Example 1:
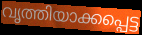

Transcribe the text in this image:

വൃത്തിയാക്കപ്പെട്ട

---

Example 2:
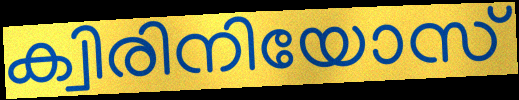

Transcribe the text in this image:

ക്വിരിനിയോസ്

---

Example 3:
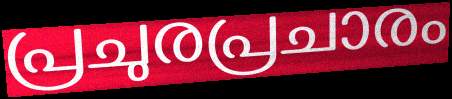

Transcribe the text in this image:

പ്രചുരപ്രചാരം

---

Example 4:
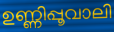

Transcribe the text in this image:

ഉണ്ണിപ്പൂവാലി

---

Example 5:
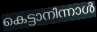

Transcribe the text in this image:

കെട്ടാനിന്നാൾ